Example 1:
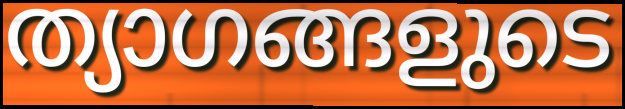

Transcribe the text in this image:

ത്യാഗങ്ങളുടെ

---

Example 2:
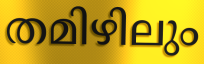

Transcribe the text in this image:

തമിഴിലും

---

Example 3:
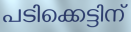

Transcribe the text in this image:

പടിക്കെട്ടിന്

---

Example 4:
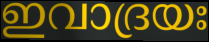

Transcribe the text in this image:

ഇവാദ്രയഃ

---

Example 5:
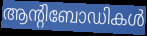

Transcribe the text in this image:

ആന്റിബോഡികൾ